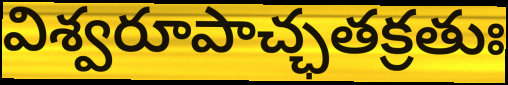
విశ్వరూపాచ్ఛతక్రతుః